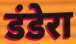
डंडेरा